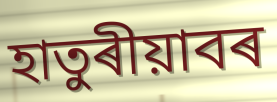
হাতুৰীয়াবৰ